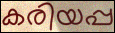
കരിയപ്പ